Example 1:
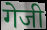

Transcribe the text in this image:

गेजी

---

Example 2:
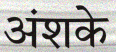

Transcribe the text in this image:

अंशके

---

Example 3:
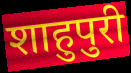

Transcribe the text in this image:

शाहुपुरी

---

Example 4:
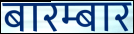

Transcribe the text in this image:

बारम्‍बार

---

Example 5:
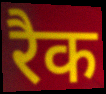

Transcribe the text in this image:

रैक